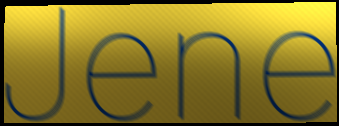
Jene